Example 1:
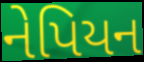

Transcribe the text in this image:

નેપિયન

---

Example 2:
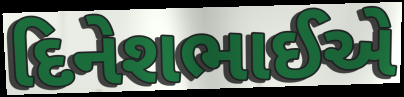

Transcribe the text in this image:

દિનેશભાઈએ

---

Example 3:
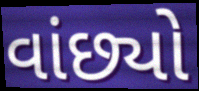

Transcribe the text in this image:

વાંછ્યો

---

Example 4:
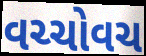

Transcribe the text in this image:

વચ્ચોવચ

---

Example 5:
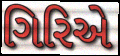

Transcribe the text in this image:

ગિરિએ